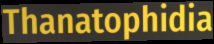
Thanatophidia